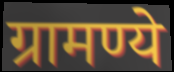
ग्रामण्ये